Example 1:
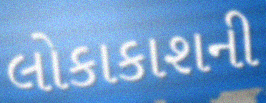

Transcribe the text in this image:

લોકાકાશની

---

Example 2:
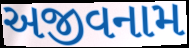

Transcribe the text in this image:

અજીવનામ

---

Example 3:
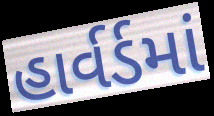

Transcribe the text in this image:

હાર્વર્ડમાં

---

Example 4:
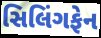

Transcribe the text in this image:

સિલિંગફેન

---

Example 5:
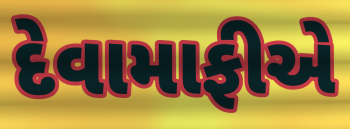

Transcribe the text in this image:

દેવામાફીએ